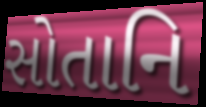
સોતાનિ